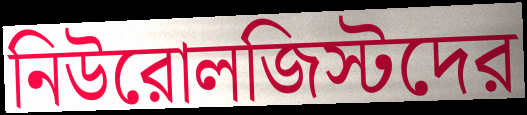
নিউরোলজিস্টদের